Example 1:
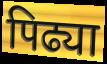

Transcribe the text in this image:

पिढ्या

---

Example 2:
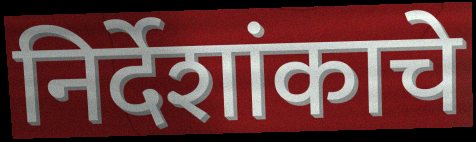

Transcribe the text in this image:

निर्देशांकाचे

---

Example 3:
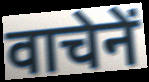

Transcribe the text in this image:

वाचेनें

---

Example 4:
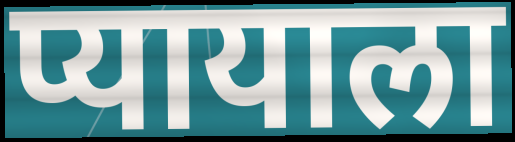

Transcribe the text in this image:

प्यायाला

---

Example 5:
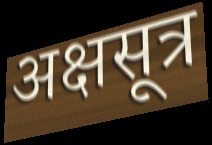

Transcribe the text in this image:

अक्षसूत्र